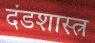
दंडशास्त्र